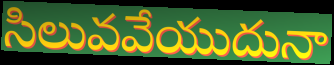
సిలువవేయుదునా